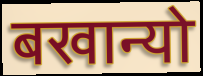
बखान्यो